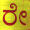
ರೇ